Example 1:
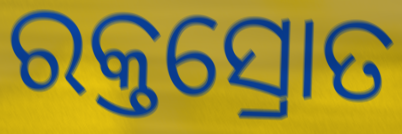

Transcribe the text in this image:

ରକ୍ତସ୍ରୋତ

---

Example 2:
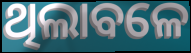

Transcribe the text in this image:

ଥିଲାବଳେ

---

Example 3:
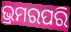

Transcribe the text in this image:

ଭ୍ରମରପରି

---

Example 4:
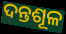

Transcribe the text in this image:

ଦନ୍ତଶୂଳ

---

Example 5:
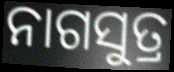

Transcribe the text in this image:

ନାଗସୁତ୍ର